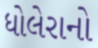
ધોલેરાનો